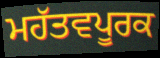
ਮਹੱਤਵਪੂਰਕ